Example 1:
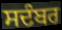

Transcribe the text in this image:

ਸਦੰਬਰ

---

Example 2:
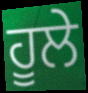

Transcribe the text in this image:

ਹੂਲੇ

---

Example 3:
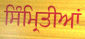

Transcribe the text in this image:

ਸਿੰਮ੍ਰਿਤੀਆਂ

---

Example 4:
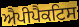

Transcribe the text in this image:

ਐਪੀਪੈਕਟਿਸ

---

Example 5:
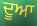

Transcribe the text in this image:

ਦੂਆ